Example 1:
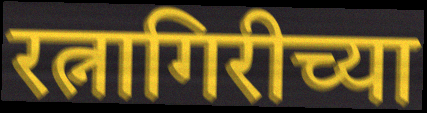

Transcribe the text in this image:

रत्नागिरीच्या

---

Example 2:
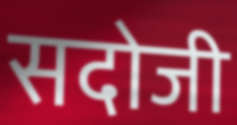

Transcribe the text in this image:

सदोजी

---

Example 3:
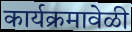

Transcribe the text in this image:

कार्यक्रमावेळी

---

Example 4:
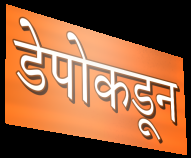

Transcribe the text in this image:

डेपोकडून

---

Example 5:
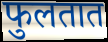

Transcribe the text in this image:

फुलतात